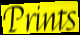
Prints